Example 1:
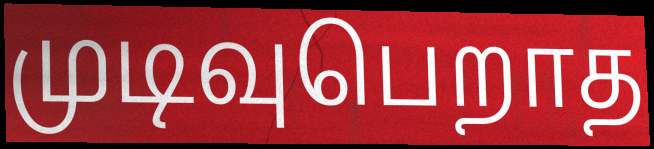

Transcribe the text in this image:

முடிவுபெறாத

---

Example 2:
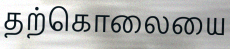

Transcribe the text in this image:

தற்கொலையை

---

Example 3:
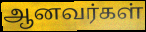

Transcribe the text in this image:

ஆனவர்கள்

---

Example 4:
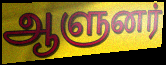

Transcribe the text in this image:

ஆளுனர்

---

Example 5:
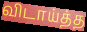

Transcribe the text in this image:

விடாய்த்த